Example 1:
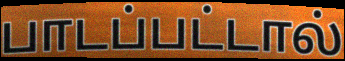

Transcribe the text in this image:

பாடப்பட்டால்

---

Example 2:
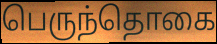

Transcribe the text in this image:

பெருந்தொகை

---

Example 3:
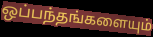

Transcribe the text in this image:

ஒப்பந்தங்களையும்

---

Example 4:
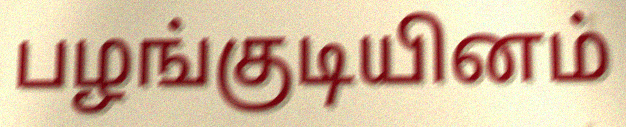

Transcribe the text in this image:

பழங்குடியினம்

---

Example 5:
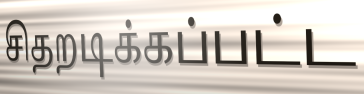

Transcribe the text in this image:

சிதறடிக்கப்பட்ட